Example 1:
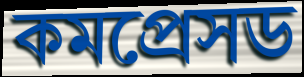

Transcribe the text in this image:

কমপ্রেসড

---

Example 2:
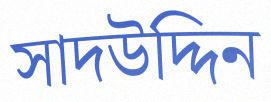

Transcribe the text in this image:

সাদউদ্দিন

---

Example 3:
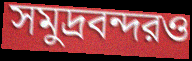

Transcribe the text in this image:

সমুদ্রবন্দরও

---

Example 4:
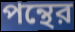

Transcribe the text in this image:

পন্থের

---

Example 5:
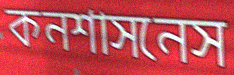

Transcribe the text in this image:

কনশাসনেস